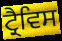
ਟ੍ਰੈਵਿਸ